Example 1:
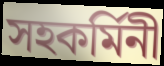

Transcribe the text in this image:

সহকর্মিনী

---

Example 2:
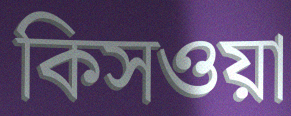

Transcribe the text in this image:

কিসওয়া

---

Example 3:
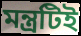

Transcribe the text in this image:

মন্ত্রটিই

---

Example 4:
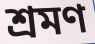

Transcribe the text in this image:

শ্রমণ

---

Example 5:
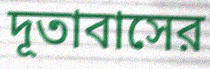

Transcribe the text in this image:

দূতাবাসের